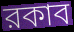
রকাব